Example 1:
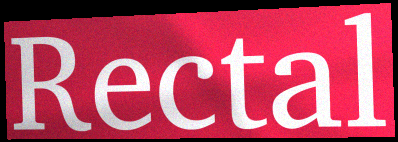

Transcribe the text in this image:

Rectal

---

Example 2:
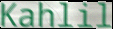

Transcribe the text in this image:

Kahlil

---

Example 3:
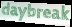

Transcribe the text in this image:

daybreak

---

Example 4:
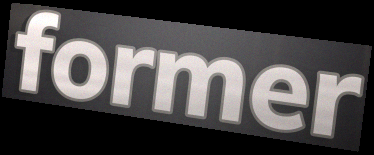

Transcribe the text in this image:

former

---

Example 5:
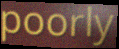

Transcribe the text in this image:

poorly